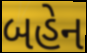
બહેન